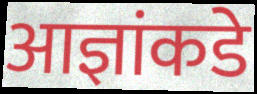
आज्ञांकडे